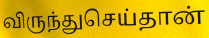
விருந்துசெய்தான்